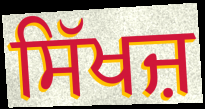
ਸਿੱਖਜ਼